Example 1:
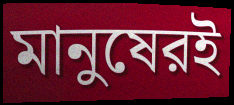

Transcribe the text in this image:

মানুষেরই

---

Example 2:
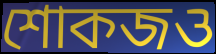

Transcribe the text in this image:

শোকজও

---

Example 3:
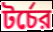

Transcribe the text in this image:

টর্চের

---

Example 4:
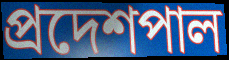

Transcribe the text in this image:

প্রদেশপাল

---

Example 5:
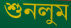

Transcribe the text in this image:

শুনলুম